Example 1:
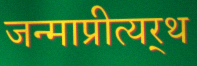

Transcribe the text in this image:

जन्माप्रीत्यर्थ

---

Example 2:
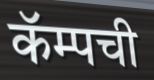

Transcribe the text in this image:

कॅम्पची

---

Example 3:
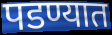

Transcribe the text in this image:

पडण्यात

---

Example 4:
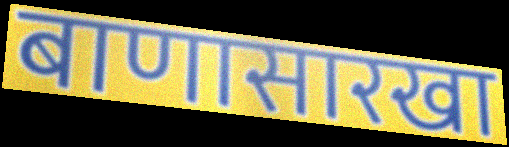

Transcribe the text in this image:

बाणासारखा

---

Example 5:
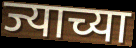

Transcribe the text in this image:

ज्याच्या